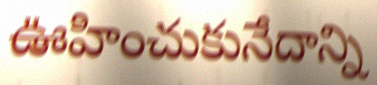
ఊహించుకునేదాన్ని